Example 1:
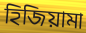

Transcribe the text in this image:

হিজিয়ামা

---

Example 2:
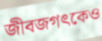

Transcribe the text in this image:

জীবজগৎকেও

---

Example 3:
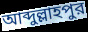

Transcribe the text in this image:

আব্দুল্লাহপুর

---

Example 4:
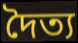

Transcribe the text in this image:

দৈত্য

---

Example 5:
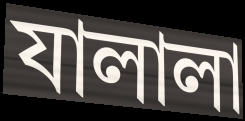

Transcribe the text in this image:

যালালা